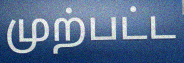
முற்பட்ட